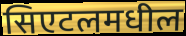
सिएटलमधील